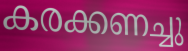
കരക്കണച്ചു